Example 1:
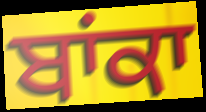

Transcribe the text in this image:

ਬਾਂਕਾ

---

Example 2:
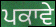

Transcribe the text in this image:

ਪਕਾਵੇ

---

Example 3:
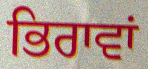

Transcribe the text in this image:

ਭਿਰਾਵਾਂ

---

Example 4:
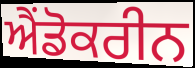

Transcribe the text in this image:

ਐਂਡੋਕਰੀਨ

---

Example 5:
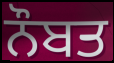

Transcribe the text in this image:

ਨੌਬਤ